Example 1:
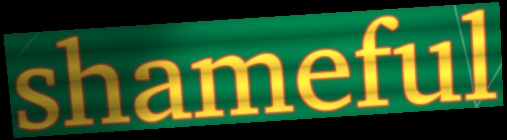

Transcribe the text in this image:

shameful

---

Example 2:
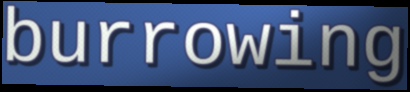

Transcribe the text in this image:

burrowing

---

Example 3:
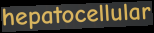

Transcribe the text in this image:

hepatocellular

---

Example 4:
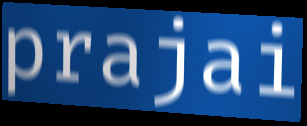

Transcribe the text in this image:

prajai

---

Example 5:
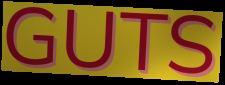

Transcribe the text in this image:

GUTS